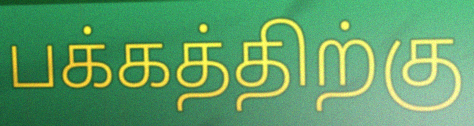
பக்கத்திற்கு